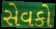
સેવકો